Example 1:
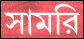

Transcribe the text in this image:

সামরি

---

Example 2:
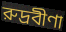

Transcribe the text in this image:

রুদ্রবীণা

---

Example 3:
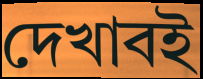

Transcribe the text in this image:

দেখাবই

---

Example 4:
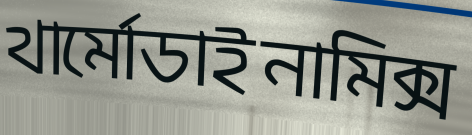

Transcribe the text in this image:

থার্মোডাইনামিক্স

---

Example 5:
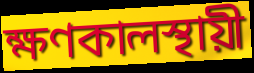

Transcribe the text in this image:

ক্ষণকালস্থায়ী